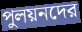
পুলয়নদের